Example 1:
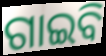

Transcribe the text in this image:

ଗାଇବି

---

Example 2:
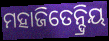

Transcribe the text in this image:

ମହାଜିତେନ୍ଦ୍ରିୟ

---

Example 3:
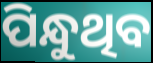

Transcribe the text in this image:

ପିନ୍ଧୁଥିବ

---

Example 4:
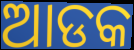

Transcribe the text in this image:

ଆଡକ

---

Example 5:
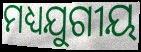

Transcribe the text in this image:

ମଧ୍ଯଯୁଗୀୟ